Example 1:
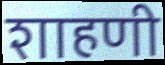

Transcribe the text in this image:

शाहणी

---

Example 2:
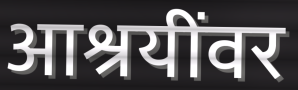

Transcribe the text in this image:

आश्रयींवर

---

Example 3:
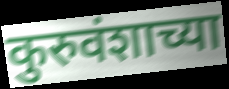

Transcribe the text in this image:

कुरुवंशाच्या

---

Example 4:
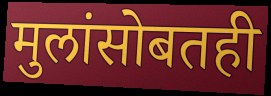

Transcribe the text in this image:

मुलांसोबतही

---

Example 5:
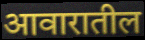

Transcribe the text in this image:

आवारातील